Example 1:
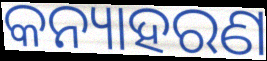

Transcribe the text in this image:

କନ୍ୟାହରଣ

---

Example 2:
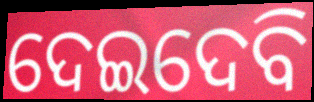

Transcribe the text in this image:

ଦେଇଦେବି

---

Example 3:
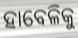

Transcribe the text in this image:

ହାବେଳିକୁ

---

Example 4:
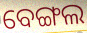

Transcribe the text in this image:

ବେଙ୍ଗଲ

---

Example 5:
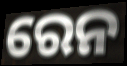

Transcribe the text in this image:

ରେନ